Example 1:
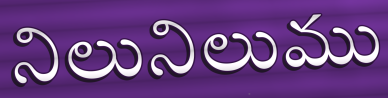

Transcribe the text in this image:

నిలునిలుము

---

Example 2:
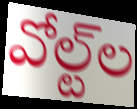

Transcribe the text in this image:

వోల్ట్‌ల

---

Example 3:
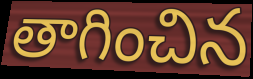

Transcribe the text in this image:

తాగించిన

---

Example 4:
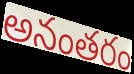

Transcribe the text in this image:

అనంతరం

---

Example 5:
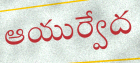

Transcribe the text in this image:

ఆయుర్వేద